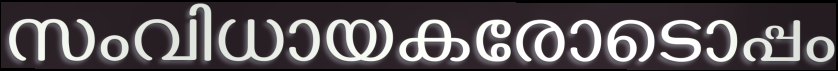
സംവിധായകരോടൊപ്പം